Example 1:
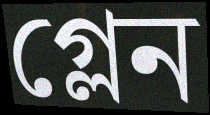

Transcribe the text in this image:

গ্লেন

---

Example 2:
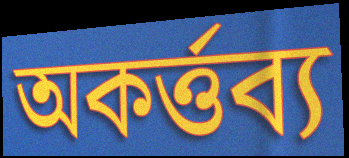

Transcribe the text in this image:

অকর্ত্তব্য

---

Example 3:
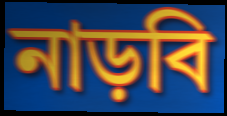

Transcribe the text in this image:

নাড়বি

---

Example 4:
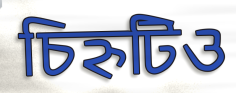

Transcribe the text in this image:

চিহ্নটিও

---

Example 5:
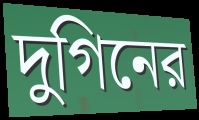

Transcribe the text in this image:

দুগিনের